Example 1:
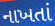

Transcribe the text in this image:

નાખતાં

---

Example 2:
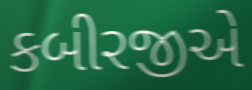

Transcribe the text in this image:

કબીરજીએ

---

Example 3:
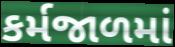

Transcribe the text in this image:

કર્મજાળમાં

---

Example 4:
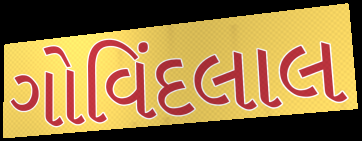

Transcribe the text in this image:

ગોવિંદલાલ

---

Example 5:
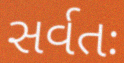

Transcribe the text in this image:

સર્વતઃ